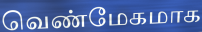
வெண்மேகமாக